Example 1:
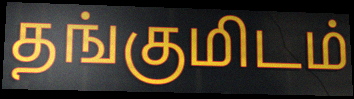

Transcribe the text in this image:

தங்குமிடம்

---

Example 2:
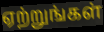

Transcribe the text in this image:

ஏற்றுங்கள்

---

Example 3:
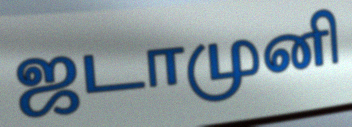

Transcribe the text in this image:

ஜடாமுனி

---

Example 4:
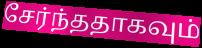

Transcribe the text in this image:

சேர்ந்ததாகவும்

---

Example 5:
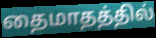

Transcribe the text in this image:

தைமாதத்தில்